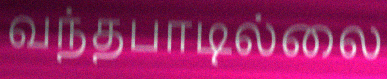
வந்தபாடில்லை